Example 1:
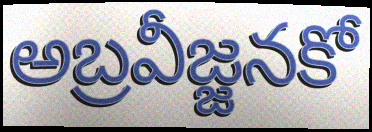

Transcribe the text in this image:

అబ్రవీజ్జనకో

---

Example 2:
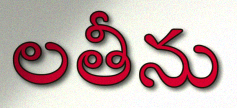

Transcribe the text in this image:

లతీను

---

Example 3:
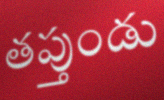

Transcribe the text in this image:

తప్తుండు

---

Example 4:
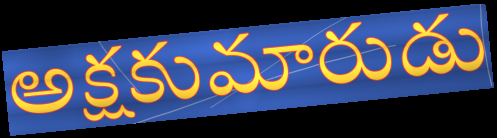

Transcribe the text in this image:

అక్షకుమారుడు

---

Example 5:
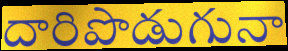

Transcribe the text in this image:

దారిపొడుగునా